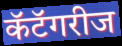
कॅटॅगरीज